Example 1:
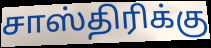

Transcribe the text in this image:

சாஸ்திரிக்கு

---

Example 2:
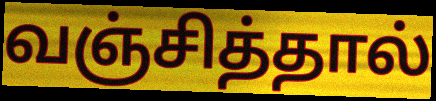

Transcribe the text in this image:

வஞ்சித்தால்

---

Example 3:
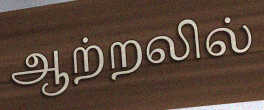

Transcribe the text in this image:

ஆற்றலில்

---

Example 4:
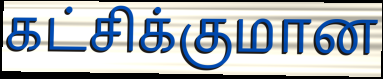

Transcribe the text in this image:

கட்சிக்குமான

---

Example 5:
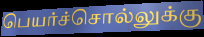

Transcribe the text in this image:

பெயர்ச்சொல்லுக்கு